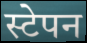
स्टेपन